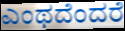
ಎಂಥದೆಂದರೆ